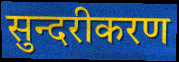
सुन्दरीकरण